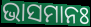
ଭାସମାନଃ